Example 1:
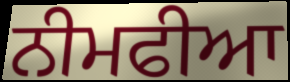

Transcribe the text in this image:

ਨੀਮਫੀਆ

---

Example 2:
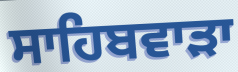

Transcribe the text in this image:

ਸਾਹਿਬਵਾੜਾ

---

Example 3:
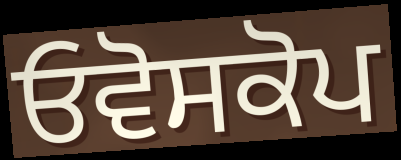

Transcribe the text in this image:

ਓਵੋਸਕੋਪ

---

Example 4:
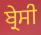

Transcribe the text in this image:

ਬ੍ਰੇਸੀ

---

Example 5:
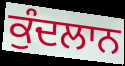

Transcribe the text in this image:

ਕੁੰਦਲਾਨ